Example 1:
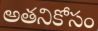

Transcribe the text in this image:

అతనికోసం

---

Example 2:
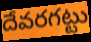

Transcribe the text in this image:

దేవరగట్టు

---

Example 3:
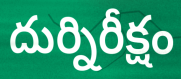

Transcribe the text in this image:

దుర్నిరీక్షం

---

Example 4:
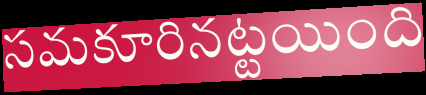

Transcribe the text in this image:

సమకూరినట్టయింది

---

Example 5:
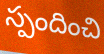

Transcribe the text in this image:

స్పందించి